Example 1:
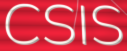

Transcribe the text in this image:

CSIS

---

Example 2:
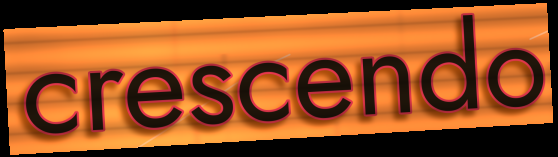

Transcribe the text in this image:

crescendo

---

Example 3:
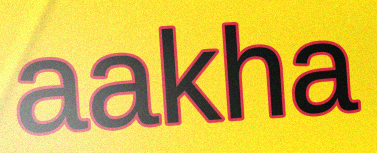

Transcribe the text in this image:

aakha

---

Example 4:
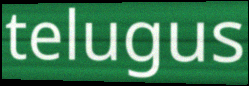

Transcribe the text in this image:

telugus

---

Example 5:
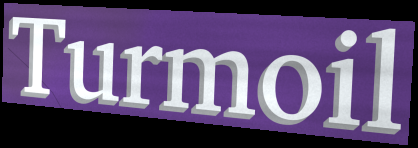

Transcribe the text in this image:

Turmoil